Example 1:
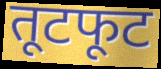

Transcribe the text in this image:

तूटफूट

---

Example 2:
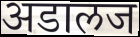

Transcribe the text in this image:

अडालज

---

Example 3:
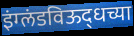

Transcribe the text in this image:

इंग्लंडविऊद्धच्या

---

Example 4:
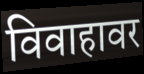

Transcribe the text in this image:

विवाहावर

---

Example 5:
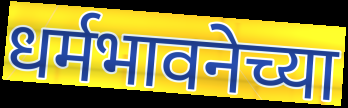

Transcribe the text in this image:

धर्मभावनेच्या